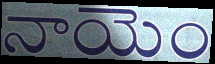
నాయెం